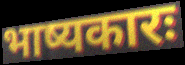
भाष्यकारः